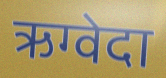
ऋग्वेदा